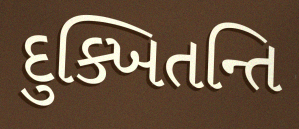
દુક્ખિતન્તિ